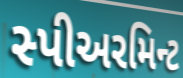
સ્પીઅરમિન્ટ